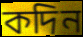
কদিন